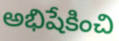
అభిషేకించి